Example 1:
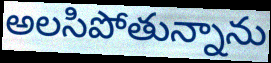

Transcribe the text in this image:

అలసిపోతున్నాను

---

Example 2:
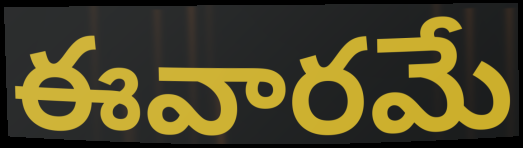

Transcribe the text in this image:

ఈవారమే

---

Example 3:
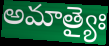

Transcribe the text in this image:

అమాత్యైః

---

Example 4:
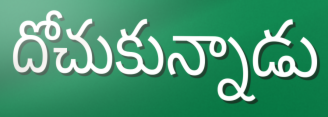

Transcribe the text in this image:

దోచుకున్నాడు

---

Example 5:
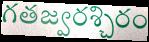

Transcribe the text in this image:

గతజ్వరశ్చిరం